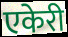
एकेरी